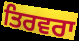
ਤਿਰਵਰਾ